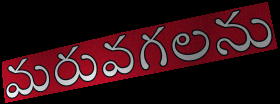
మరువగలను